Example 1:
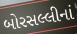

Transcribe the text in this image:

બોરસલ્લીનાં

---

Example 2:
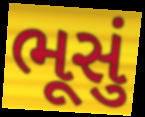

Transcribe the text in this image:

ભૂસું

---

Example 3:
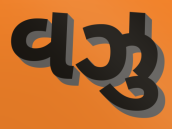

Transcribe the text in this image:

વઝુ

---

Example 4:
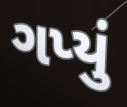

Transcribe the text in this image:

ગપ્યું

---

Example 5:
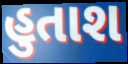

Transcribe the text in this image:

હુતાશ